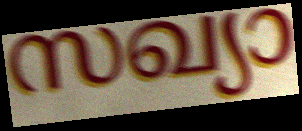
സഖ്യാ